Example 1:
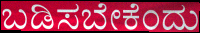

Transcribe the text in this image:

ಬಡಿಸಬೇಕೆಂದು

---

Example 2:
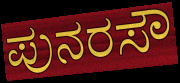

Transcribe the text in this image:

ಪುನರಸೌ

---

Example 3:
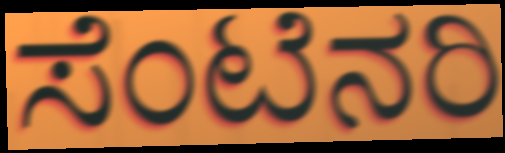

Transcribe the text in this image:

ಸೆಂಟೆನರಿ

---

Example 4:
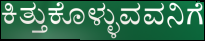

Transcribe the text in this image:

ಕಿತ್ತುಕೊಳ್ಳುವವನಿಗೆ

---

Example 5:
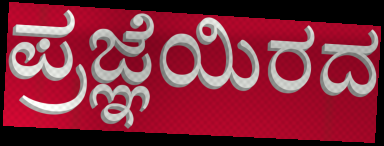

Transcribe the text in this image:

ಪ್ರಜ್ಞೆಯಿರದ